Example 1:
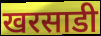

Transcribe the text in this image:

खरसाडी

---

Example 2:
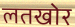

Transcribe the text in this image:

लतखोर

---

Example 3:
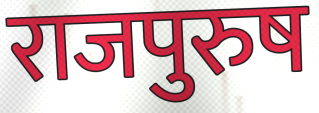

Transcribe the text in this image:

राजपुरुष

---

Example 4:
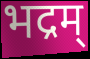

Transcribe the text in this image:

भद्रम्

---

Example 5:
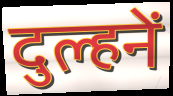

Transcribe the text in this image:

दुल्हनें